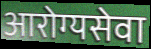
आरोग्यसेवा